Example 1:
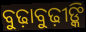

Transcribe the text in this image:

ବୁଢ଼ାବୁଢ଼ୀଙ୍କି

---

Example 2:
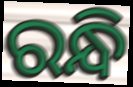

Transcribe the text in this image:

ରନ୍ଧି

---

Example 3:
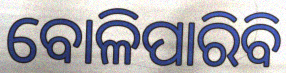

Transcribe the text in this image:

ବୋଳିପାରିବି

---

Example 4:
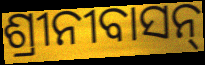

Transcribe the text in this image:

ଶ୍ରୀନୀବାସନ୍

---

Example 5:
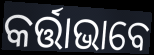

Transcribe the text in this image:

କର୍ତ୍ତାଭାବେ